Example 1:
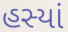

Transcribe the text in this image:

હસ્યાં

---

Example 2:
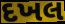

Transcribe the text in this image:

દખલ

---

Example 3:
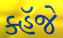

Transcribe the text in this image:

ક્હૅજે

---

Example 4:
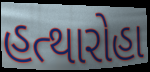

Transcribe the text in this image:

હત્થારોહા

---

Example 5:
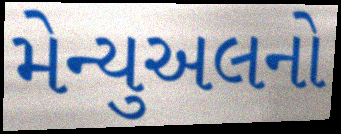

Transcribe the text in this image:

મેન્યુઅલનો